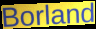
Borland